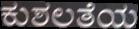
ಕುಶಲತೆಯ